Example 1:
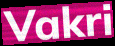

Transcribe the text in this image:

Vakri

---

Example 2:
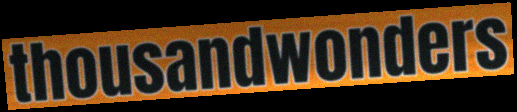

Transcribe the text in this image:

thousandwonders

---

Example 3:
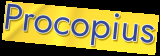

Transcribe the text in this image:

Procopius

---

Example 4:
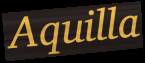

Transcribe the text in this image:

Aquilla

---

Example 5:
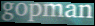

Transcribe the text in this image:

gopman